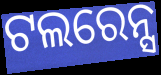
ଟଲରେନ୍ସ